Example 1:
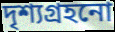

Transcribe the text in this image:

দৃশ্যগ্ৰহনো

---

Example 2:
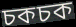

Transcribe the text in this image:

চকচক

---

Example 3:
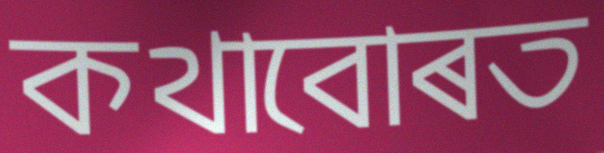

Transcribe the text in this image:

কথাবোৰত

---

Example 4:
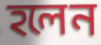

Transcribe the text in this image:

হলেন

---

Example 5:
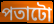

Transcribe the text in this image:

পতাটো